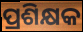
ପ୍ରଶିକ୍ଷକ